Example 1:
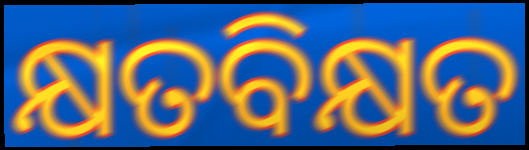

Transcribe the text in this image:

କ୍ଷତବିକ୍ଷତ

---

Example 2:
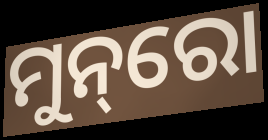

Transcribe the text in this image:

ମୁନ୍‌ରୋ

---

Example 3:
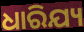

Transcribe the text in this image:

ଧାରିଯ୍ୟ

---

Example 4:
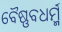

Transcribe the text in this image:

ବୈଷ୍ଣବଧର୍ମ୍ମ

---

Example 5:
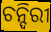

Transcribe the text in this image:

ଚନ୍ଦିରୀ